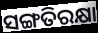
ସଙ୍ଗତିରକ୍ଷା